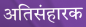
अतिसंहारक